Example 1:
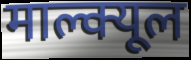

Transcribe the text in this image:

माल्क्यूल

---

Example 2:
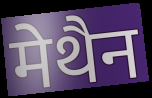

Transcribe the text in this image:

मेथैन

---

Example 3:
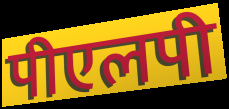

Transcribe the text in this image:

पीएलपी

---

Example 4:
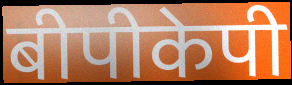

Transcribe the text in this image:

बीपीकेपी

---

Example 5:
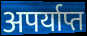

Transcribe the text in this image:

अपर्याप्त